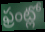
ఫ్రంట్లో